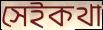
সেইকথা